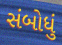
સંબોધું